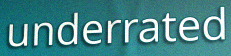
underrated